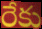
రేకు